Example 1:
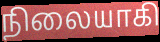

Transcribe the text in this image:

நிலையாகி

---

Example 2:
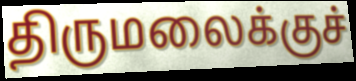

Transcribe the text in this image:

திருமலைக்குச்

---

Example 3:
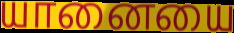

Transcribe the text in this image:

யானையை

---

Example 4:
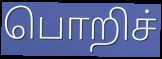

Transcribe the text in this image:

பொறிச்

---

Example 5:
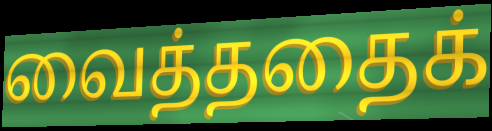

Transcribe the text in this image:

வைத்ததைக்